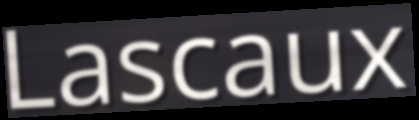
Lascaux